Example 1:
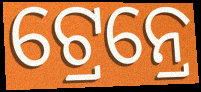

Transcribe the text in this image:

ଟ୍ରେନ୍ରେ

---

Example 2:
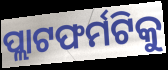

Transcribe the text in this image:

ପ୍ଲାଟଫର୍ମଟିକୁ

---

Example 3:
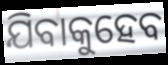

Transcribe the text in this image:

ଯିବାକୁହେବ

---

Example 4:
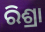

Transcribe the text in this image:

ରିଶ୍ରା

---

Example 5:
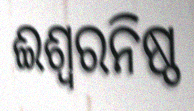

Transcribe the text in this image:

ଈଶ୍ୱରନିଷ୍ଠ